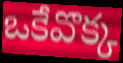
ఒకేవొక్క